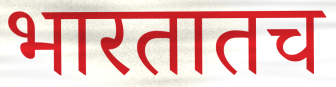
भारतातच